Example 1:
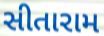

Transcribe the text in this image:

સીતારામ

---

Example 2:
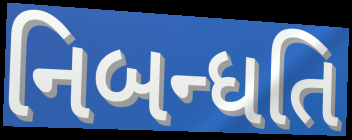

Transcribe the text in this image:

નિબન્ધતિ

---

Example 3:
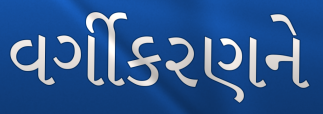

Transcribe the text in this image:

વર્ગીકરણને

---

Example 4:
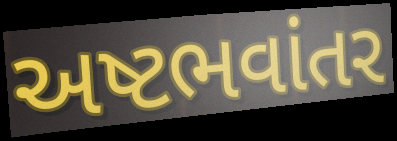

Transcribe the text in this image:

અષ્ટભવાંતર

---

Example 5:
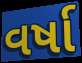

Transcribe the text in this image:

વર્ષા